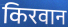
किरवान